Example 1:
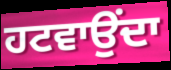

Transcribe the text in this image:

ਹਟਵਾਉਂਦਾ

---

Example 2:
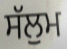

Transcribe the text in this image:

ਸੱਲੁਮ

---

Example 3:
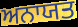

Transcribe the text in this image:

ਅਨਾਯਤ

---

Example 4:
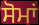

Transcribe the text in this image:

ਸੋਮਾਂ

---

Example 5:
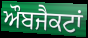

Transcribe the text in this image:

ਔਬਜੈਕਟਾਂ